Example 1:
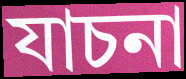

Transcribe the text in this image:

যাচনা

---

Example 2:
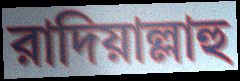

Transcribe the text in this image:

রাদিয়াল্লাহু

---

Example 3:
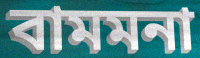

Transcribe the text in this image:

বামমনা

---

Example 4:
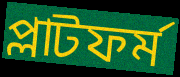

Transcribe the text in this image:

প্লাটফর্ম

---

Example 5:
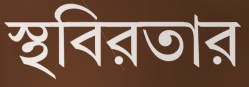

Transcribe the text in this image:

স্থবিরতার